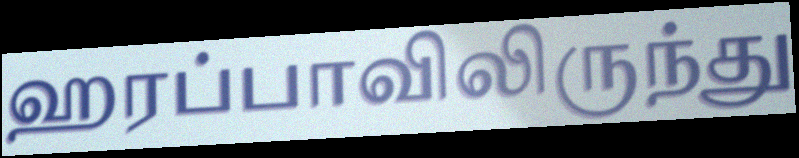
ஹரப்பாவிலிருந்து